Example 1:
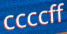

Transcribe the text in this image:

ccccff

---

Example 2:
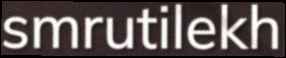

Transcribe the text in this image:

smrutilekh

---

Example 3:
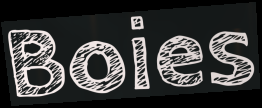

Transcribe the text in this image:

Boies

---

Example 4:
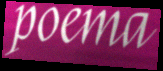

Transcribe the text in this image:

poema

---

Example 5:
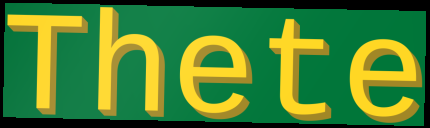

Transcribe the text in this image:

Thete